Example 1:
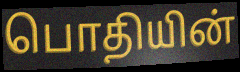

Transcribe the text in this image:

பொதியின்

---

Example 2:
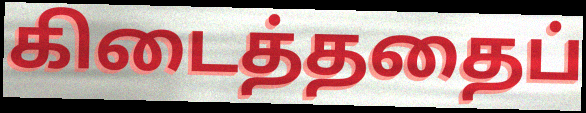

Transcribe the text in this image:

கிடைத்ததைப்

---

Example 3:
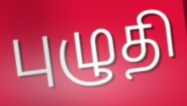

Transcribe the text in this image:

புழுதி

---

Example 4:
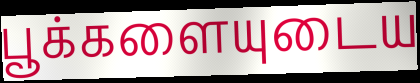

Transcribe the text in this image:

பூக்களையுடைய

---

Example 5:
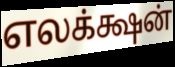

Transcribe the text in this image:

எலக்க்ஷன்